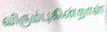
விரும்புகின்றாள்